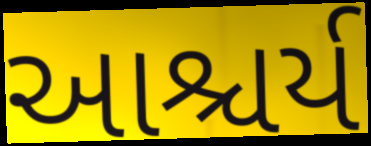
આશ્ચર્ય